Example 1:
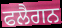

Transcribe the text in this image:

ਫਲੈਗਨ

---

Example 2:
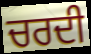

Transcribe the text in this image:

ਚਰਦੀ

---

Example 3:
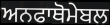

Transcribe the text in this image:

ਅਨਫਾਥੋਮੇਬਲ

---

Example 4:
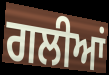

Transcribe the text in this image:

ਗਲੀਆਂ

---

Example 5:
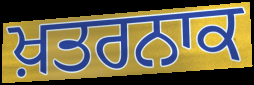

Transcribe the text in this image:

ਖ਼ਤਰਨਾਕ